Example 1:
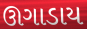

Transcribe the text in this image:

ઊગાડાય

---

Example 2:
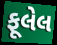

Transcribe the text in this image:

ફૂલેલ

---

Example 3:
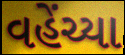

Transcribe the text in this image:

વહેંચ્યા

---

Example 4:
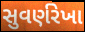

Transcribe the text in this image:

સુવર્ણરેખા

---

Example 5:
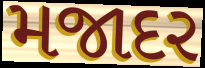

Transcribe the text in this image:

મજાદર